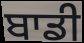
ਬਾਡੀ